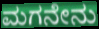
ಮಗನೇನು